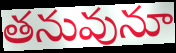
తనువునూ